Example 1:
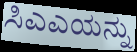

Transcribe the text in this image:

ಸಿಎಎಯನ್ನು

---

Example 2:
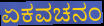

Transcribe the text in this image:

ಏಕವಚನಂ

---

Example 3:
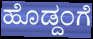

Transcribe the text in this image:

ಹೊಡ್ದಂಗೆ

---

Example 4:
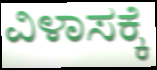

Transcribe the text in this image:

ವಿಳಾಸಕ್ಕೆ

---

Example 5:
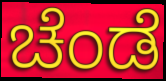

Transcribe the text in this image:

ಚೆಂಡೆ